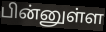
பின்னுள்ள